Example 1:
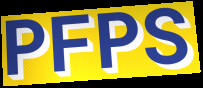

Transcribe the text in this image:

PFPS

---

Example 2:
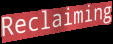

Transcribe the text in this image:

Reclaiming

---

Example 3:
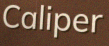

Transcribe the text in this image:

Caliper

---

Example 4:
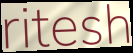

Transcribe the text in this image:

ritesh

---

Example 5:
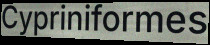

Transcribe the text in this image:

Cypriniformes